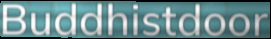
Buddhistdoor